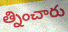
త్నించారు